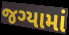
જગ્યામાં